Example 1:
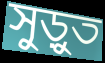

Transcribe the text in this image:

সুড়ুত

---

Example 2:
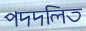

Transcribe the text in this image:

পদদলিত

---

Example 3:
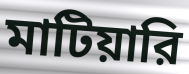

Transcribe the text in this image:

মাটিয়ারি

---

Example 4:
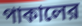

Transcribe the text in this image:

পাকালের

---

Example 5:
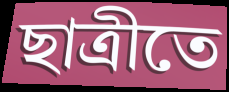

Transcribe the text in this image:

ছাত্রীতে